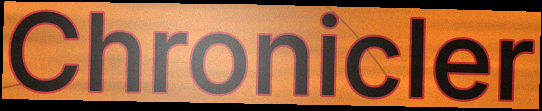
Chronicler